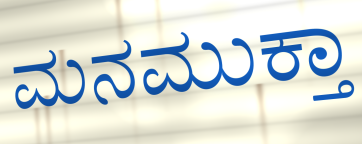
ಮನಮುಕ್ತಾ